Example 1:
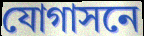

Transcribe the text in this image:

যোগাসনে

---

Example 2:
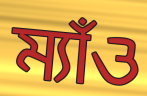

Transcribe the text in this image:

ম্যাঁও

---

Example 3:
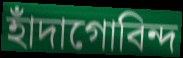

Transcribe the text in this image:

হাঁদাগোবিন্দ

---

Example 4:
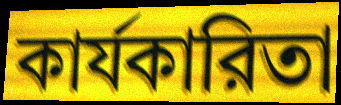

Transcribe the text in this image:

কার্যকারিতা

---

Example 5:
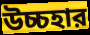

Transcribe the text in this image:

উচ্চহার